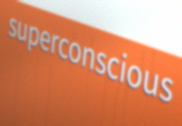
superconscious